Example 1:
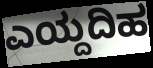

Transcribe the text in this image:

ಎಯ್ದದಿಹ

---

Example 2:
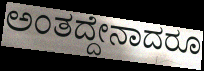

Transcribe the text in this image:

ಅಂತದ್ದೇನಾದರೂ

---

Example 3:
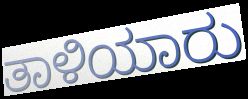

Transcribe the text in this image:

ತಾಳಿಯಾರು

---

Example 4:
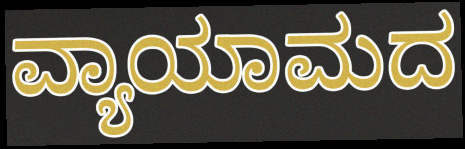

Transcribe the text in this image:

ವ್ಯಾಯಾಮದ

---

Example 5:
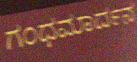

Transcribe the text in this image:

ಗಂಧಮಾರ್ದನ